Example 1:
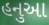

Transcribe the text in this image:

હનુઆ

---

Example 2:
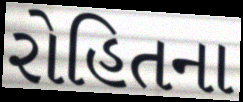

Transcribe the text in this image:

રોહિતના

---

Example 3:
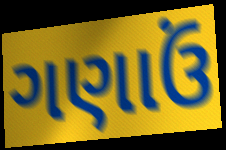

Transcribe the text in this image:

ગણાઉં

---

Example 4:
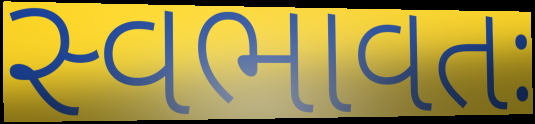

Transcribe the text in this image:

સ્વભાવતઃ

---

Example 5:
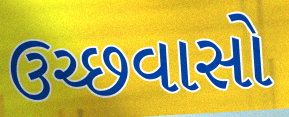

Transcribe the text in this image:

ઉચ્છવાસો